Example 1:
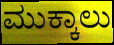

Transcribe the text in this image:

ಮುಕ್ಕಾಲು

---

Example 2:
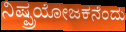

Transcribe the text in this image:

ನಿಷ್ಪ್ರಯೋಜಕನೆಂದು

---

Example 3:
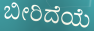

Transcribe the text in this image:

ಬೀರಿದೆಯೆ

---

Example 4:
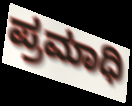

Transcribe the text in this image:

ಪ್ರಮಾಧಿ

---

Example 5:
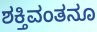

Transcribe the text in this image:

ಶಕ್ತಿವಂತನೂ